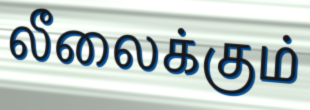
லீலைக்கும்